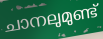
ചാനലുമുണ്ട്